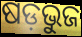
ଷଡ଼ଭୁଜ